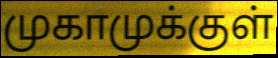
முகாமுக்குள்